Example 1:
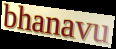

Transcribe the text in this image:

bhanavu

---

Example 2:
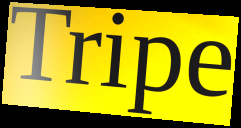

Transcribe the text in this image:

Tripe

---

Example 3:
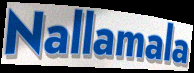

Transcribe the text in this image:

Nallamala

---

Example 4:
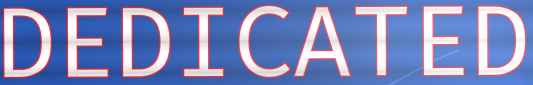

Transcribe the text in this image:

DEDICATED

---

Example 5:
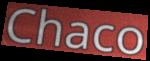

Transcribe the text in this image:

Chaco